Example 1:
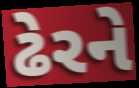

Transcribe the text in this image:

ઢેરને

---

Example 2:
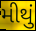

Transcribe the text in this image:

મીથું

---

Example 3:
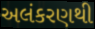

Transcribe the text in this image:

અલંકરણથી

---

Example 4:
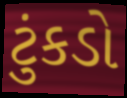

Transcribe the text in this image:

ટુંકડો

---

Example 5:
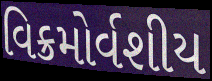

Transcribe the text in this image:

વિક્રમોર્વશીય